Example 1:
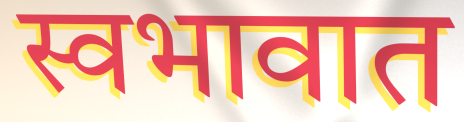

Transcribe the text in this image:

स्वभावात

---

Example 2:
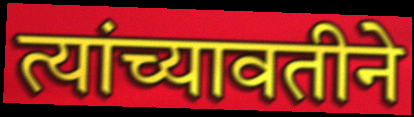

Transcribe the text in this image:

त्यांच्यावतीने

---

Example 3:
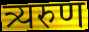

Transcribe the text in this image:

त्र्यरुण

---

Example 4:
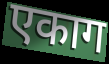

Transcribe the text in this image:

एकाग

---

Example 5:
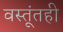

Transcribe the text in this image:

वस्तूंतही